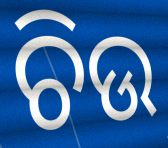
ଚିଉ